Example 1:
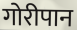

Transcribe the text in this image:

गोरीपान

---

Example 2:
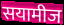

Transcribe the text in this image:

सयामीज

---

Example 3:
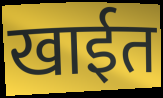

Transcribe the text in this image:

खाईत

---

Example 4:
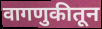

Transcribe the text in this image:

वागणुकीतून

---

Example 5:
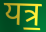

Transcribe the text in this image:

यत्र॒